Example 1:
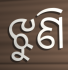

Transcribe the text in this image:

ଝୁଣି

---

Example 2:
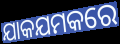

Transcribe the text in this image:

ଯାକଯମକରେ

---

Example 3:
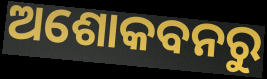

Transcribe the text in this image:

ଅଶୋକବନରୁ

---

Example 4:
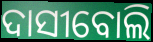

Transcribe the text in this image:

ଦାସୀବୋଲି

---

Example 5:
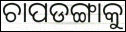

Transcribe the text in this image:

ଚାପଡଙ୍ଗାକୁ